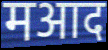
मआद